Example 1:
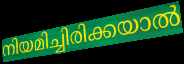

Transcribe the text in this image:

നിയമിച്ചിരിക്കയാൽ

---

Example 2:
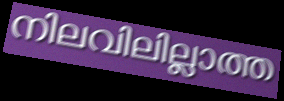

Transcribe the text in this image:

നിലവിലില്ലാത്ത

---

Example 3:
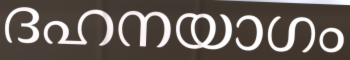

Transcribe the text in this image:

ദഹനയാഗം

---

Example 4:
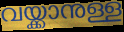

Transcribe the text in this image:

വയ്ക്കാനുള്ള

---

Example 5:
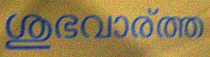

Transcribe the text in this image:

ശുഭവാര്ത്ത